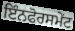
ਇੰਨਫੋਰਸਮੇਂਟ